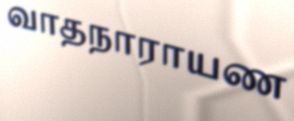
வாதநாராயண